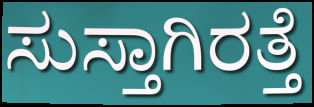
ಸುಸ್ತಾಗಿರತ್ತೆ